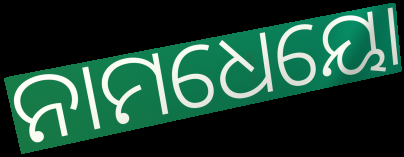
ନାମଧେୟୋ